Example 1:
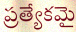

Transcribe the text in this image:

ప్రత్యేకమై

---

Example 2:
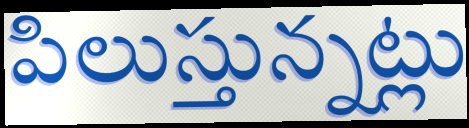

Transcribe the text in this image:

పిలుస్తున్నట్లు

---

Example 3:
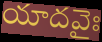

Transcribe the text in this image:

యాదవైః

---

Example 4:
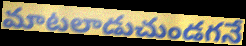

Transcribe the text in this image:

మాటలాడుచుండగనే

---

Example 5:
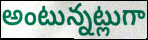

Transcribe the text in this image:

అంటున్నట్లుగా